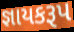
જ્ઞાયકરૂપ